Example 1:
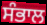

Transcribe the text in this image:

ਸੰਭਾਲ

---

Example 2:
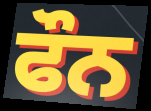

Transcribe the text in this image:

ਫੌਨ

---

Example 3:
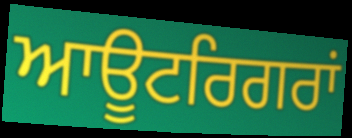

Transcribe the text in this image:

ਆਊਟਰਿਗਰਾਂ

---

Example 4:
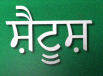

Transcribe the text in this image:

ਸ਼ੈਟੂਸ਼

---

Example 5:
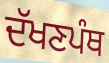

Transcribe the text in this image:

ਦੱਖਣਪੰਥ